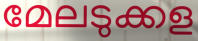
മേലടുക്കള